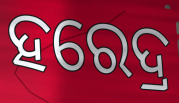
ହରେଦ୍ର